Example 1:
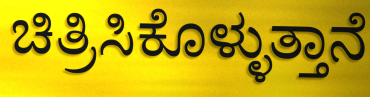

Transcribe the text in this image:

ಚಿತ್ರಿಸಿಕೊಳ್ಳುತ್ತಾನೆ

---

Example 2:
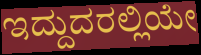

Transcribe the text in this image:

ಇದ್ದುದರಲ್ಲಿಯೇ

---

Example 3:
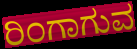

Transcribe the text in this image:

ರಿಂಗಾಗುವ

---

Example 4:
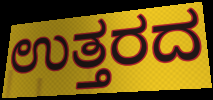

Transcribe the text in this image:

ಉತ್ತರದ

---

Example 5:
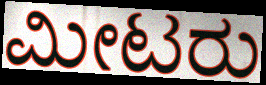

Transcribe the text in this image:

ಮೀಟರು